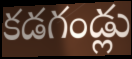
కడగండ్లు